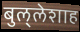
बुल्लेशाह